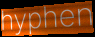
hyphen